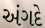
અંગદે